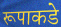
रूपाकडे